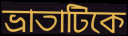
ভ্রাতাটিকে